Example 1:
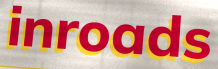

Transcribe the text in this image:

inroads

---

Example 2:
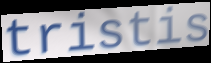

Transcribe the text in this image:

tristis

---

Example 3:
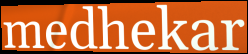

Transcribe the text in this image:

medhekar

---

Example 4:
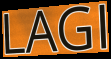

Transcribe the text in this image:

LAGI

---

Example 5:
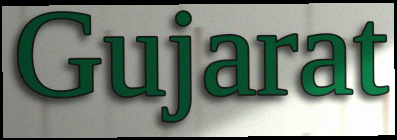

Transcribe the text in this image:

Gujarat